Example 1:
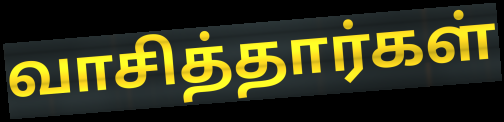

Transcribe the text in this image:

வாசித்தார்கள்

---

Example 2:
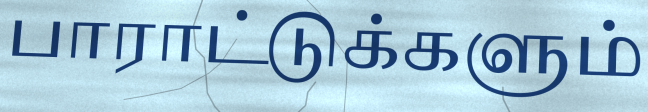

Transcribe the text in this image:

பாராட்டுக்களும்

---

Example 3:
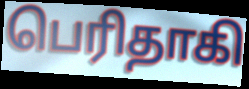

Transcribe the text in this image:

பெரிதாகி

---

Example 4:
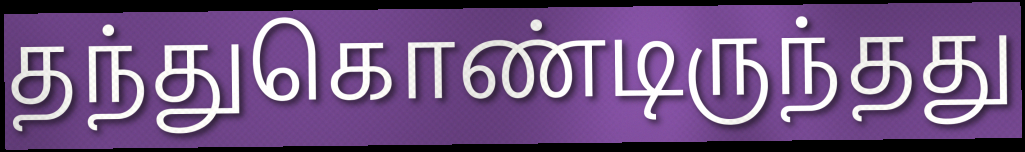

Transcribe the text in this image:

தந்துகொண்டிருந்தது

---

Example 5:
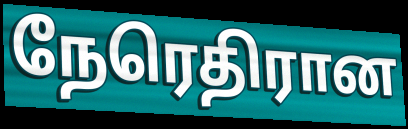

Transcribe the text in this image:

நேரெதிரான